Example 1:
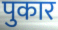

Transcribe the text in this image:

पुकार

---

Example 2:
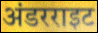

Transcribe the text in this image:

अंडरराइट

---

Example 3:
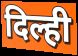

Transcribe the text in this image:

दिल्ही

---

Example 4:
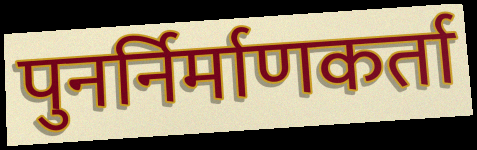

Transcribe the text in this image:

पुनर्निर्माणकर्ता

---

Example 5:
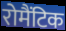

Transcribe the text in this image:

रोमैंटिक